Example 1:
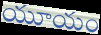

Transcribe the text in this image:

యూయం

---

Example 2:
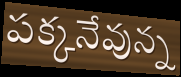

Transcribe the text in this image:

పక్కనేవున్న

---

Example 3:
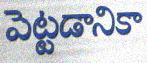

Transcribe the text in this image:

పెట్టడానికా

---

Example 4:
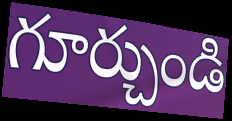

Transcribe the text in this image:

గూర్చుండి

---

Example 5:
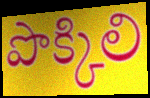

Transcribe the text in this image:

పొక్కిలి